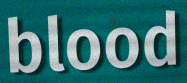
blood